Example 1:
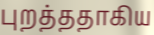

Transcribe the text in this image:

புறத்ததாகிய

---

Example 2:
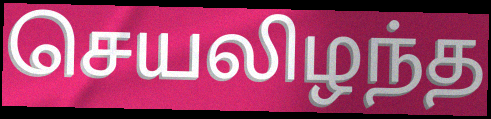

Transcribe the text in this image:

செயலிழந்த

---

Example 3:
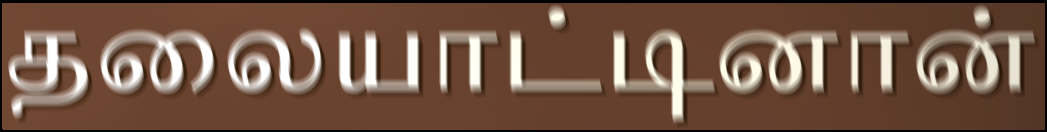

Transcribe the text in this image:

தலையாட்டினான்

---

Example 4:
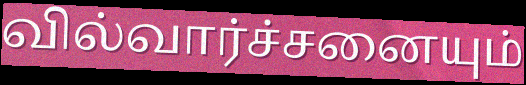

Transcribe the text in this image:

வில்வார்ச்சனையும்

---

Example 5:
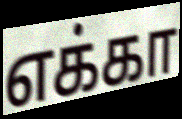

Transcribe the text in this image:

எக்கா